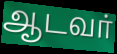
ஆடவர்